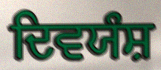
ਦਿਵਯੰਸ਼